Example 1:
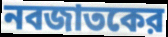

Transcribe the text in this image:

নবজাতকের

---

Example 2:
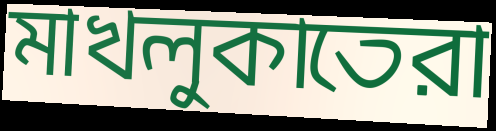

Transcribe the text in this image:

মাখলুকাতেরা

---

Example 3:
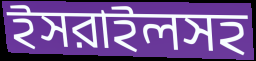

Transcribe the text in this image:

ইসরাইলসহ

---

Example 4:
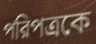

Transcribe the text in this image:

পরিপত্রকে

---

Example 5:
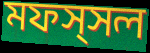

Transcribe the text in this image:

মফস্‌সল